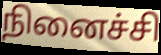
நினைச்சி